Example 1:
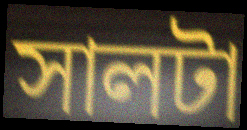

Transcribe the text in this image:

সালটা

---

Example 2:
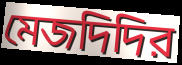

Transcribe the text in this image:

মেজদিদির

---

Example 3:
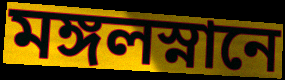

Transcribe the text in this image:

মঙ্গলস্নানে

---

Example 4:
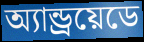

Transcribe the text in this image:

অ্যান্ড্রয়েডে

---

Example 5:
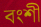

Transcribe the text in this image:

বংশী